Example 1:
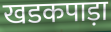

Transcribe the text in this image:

खडकपाड़ा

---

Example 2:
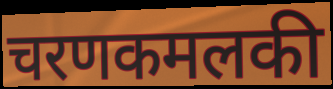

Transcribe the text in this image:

चरणकमलकी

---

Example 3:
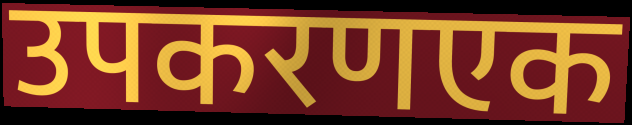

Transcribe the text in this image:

उपकरणएक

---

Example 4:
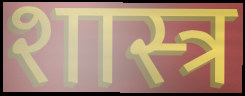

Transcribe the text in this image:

शास्‍त्र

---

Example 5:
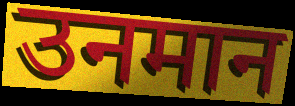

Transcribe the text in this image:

उनमान